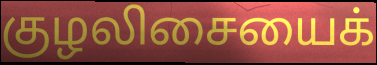
குழலிசையைக்